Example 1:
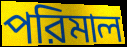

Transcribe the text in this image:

পরিমাল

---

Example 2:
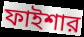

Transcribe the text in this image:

ফাইশার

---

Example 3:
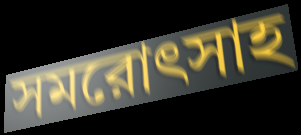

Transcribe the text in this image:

সমরোৎসাহ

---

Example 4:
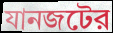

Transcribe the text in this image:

যানজটের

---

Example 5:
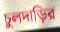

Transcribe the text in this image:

চুলদাড়ির